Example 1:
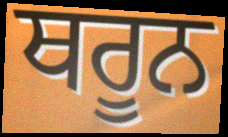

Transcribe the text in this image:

ਥਰੂਨ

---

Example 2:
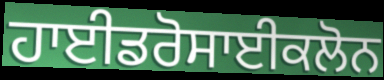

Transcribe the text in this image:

ਹਾਈਡਰੋਸਾਈਕਲੋਨ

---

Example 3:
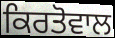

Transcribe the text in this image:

ਕਿਰਤੋਵਾਲ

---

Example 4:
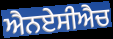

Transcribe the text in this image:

ਐਨਏਸੀਐਚ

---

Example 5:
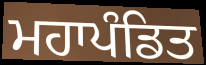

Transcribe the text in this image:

ਮਹਾਪੰਡਿਤ